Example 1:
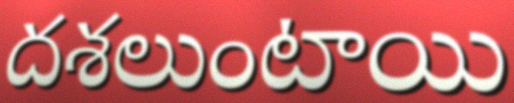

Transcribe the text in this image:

దశలుంటాయి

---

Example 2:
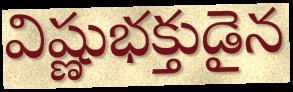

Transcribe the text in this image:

విష్ణుభక్తుడైన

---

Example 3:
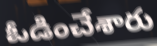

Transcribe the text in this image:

ఓడించేశారు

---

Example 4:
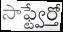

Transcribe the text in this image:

సాఫ్ట్వేర్తో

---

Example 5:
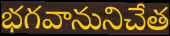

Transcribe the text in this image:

భగవానునిచేత